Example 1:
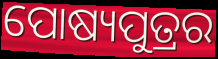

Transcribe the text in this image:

ପୋଷ୍ୟପୁତ୍ରର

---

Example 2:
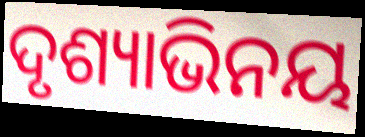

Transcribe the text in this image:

ଦୃଶ୍ୟାଭିନୟ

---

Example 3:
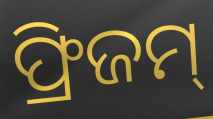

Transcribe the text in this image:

ଫ୍ରିଜମ୍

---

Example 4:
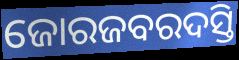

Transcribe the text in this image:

ଜୋରଜବରଦସ୍ତି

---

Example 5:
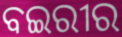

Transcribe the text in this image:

ବଇରୀର